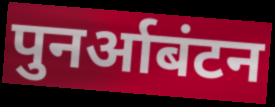
पुनर्आबंटन